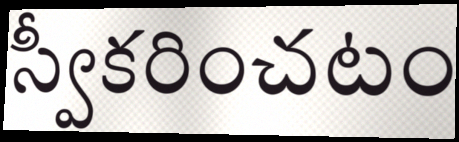
స్వీకరించటం